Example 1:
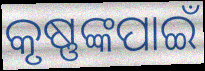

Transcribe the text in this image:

କୃଷ୍ଣଙ୍କପାଇଁ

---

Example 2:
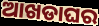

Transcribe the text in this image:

ଆଖଡାଘର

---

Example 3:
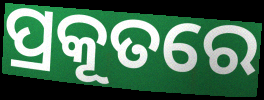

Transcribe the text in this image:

ପ୍ରକୂତରେ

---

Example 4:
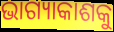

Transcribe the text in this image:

ଭାଗ୍ୟାକାଶକୁ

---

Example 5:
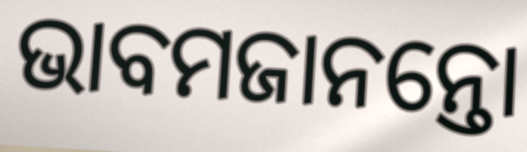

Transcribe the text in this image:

ଭାବମଜାନନ୍ତୋ